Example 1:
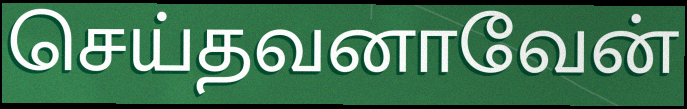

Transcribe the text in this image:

செய்தவனாவேன்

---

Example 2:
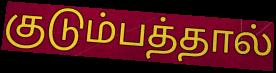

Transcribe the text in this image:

குடும்பத்தால்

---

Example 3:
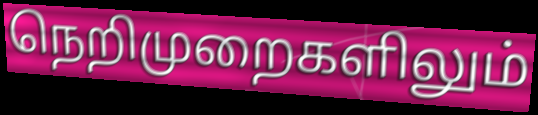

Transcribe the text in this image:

நெறிமுறைகளிலும்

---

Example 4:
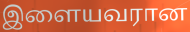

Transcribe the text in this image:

இளையவரான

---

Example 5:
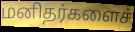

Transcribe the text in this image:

மனிதர்களைச்